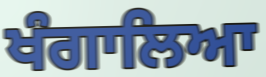
ਖੰਗਾਲਿਆ